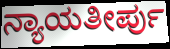
ನ್ಯಾಯತೀರ್ಪು